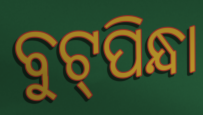
ବୁଟ୍‌ପିନ୍ଧା